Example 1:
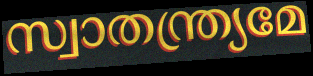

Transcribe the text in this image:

സ്വാതന്ത്ര്യമേ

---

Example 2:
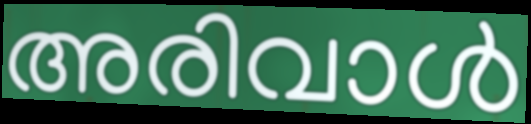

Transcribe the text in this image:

അരിവാൾ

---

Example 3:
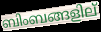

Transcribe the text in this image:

ബിംബങ്ങളില്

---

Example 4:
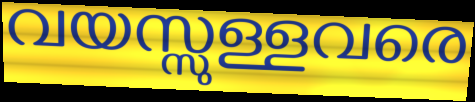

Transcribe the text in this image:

വയസ്സുള്ളവരെ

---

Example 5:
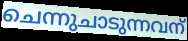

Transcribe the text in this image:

ചെന്നുചാടുന്നവന്